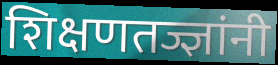
शिक्षणतज्ज्ञांनी